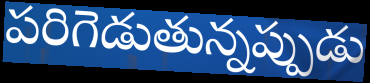
పరిగెడుతున్నప్పుడు